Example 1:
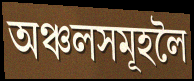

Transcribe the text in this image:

অঞ্চলসমূহলৈ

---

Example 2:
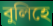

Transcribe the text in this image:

বুলিহে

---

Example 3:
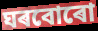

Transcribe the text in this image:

ঘৰবোৰো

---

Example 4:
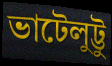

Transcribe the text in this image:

ভাটেলুট্টু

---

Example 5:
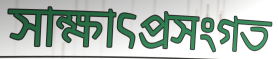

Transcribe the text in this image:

সাক্ষাৎপ্ৰসংগত